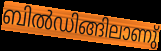
ബിൽഡിങ്ങിലാണു്